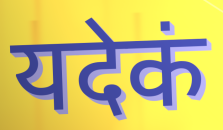
यदेकं